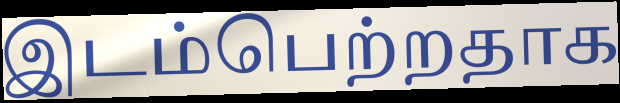
இடம்பெற்றதாக